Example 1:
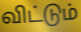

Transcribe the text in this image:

விட்டும்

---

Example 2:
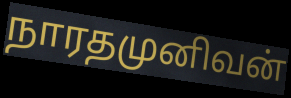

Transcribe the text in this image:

நாரதமுனிவன்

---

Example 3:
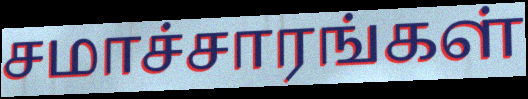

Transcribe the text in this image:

சமாச்சாரங்கள்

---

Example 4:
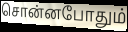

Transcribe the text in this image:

சொன்னபோதும்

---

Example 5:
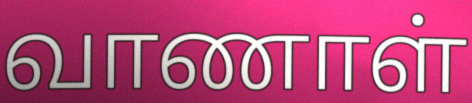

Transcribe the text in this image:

வாணாள்